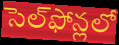
సెల్‌ఫోన్లలో